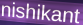
nishikant